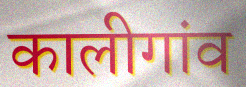
कालीगांव